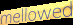
mellowed